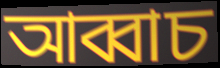
আব্বাচ